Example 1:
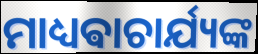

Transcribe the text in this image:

ମାଧ୍ୟଵାଚାର୍ଯ୍ୟଙ୍କ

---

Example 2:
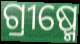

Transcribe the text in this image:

ଗ୍ରୀଷ୍ମେ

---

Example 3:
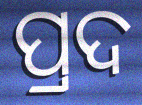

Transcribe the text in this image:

ପ୍ରଦ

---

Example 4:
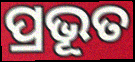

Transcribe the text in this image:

ପ୍ରଭୂତ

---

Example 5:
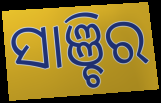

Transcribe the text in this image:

ସାଞ୍ଚିର